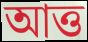
আত্ত